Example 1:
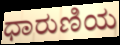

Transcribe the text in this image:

ಧಾರುಣಿಯ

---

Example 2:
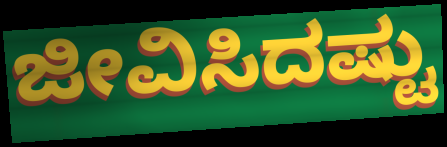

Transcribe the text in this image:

ಜೀವಿಸಿದಷ್ಟು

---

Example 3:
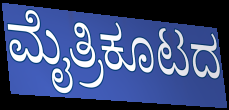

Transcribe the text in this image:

ಮೈತ್ರಿಕೂಟದ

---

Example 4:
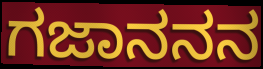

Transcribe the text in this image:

ಗಜಾನನನ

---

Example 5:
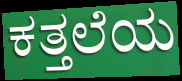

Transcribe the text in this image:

ಕತ್ತಲೆಯ